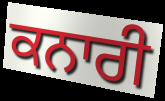
ਕਨਾਰੀ